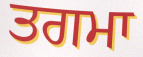
ਤਗਮਾ